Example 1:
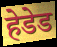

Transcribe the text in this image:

हेडेड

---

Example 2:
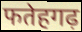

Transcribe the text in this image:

फतेहगढ़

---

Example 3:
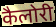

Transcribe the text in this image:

कैलोरी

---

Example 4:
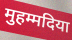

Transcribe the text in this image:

मुहम्मदिया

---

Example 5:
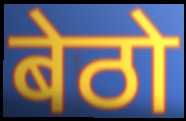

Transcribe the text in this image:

बेठो